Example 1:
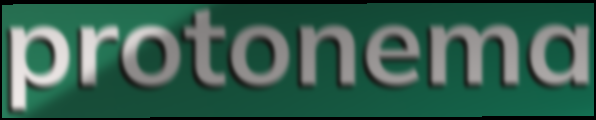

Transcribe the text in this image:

protonema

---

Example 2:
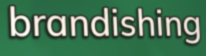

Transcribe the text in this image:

brandishing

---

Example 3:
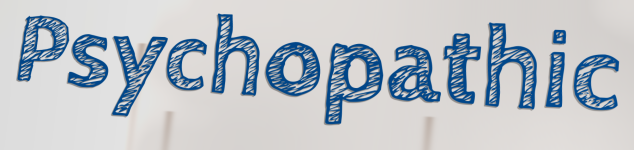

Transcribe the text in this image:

Psychopathic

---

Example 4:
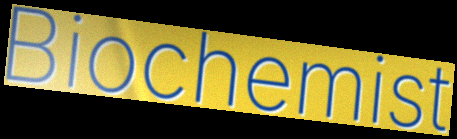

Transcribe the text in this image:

Biochemist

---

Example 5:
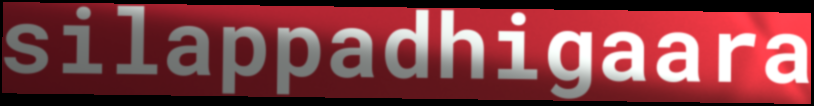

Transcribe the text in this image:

silappadhigaara